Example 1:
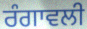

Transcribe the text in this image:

ਰੰਗਾਵਲੀ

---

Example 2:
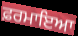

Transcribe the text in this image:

ਫ਼ਰਮਾਇਆ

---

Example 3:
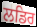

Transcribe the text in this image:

ਲਡਿਰ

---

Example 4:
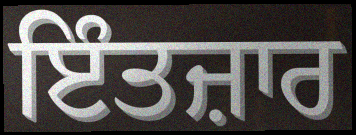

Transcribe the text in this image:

ਇੰਤਜ਼ਾਰ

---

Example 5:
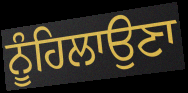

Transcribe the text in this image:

ਨੂੰਹਿਲਾਉਣਾ